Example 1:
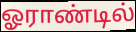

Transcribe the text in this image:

ஓராண்டில்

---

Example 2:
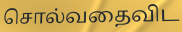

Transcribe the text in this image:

சொல்வதைவிட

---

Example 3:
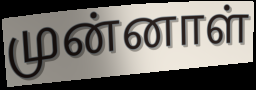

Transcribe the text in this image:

முன்னாள்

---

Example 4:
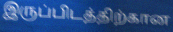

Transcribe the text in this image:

இருப்பிடத்திற்கான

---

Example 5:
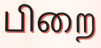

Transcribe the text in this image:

பிறை